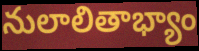
నులాలితాభ్యాం